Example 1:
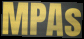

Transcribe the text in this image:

MPAs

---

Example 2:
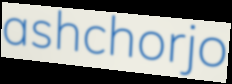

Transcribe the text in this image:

ashchorjo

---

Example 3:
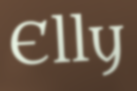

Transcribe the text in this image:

Elly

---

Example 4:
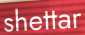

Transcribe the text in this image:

shettar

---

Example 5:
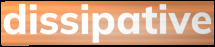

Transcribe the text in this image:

dissipative